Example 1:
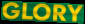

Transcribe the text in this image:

GLORY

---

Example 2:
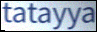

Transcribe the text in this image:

tatayya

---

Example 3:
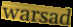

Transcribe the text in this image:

warsad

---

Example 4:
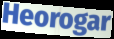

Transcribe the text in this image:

Heorogar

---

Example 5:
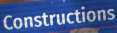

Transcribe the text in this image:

Constructions